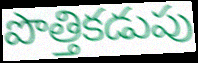
పొత్తికడుపు